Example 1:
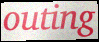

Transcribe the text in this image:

outing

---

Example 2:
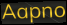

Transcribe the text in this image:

Aapno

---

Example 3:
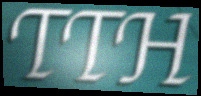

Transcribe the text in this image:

TTH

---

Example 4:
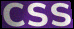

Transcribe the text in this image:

css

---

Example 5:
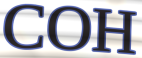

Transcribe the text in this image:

COH